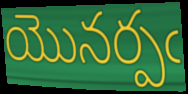
యొనర్పఁ